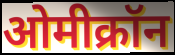
ओमीक्रॉन